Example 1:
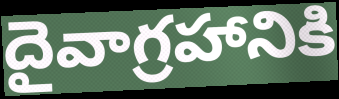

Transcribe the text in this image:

దైవాగ్రహానికి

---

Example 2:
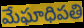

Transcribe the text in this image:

మేఘాధిపతి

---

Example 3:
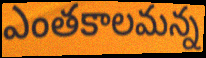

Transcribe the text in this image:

ఎంతకాలమన్న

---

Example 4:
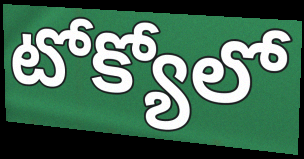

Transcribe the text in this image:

టోక్యోలో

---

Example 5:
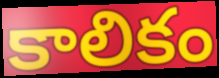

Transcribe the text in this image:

కాలికం